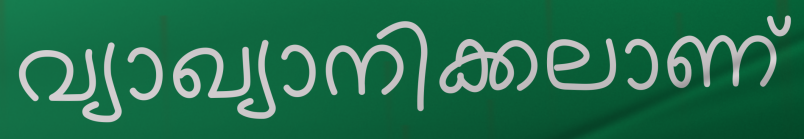
വ്യാഖ്യാനിക്കലാണ്